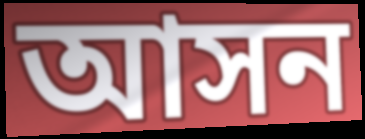
আসন